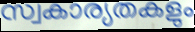
സ്വകാര്യതകളും